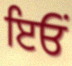
ਇਓਂ